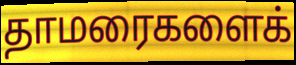
தாமரைகளைக்